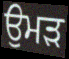
ਉਮੜ